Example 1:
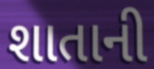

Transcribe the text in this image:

શાતાની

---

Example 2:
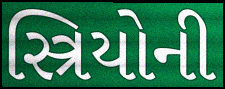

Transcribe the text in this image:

સ્ત્રિયોની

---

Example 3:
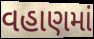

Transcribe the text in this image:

વહાણમાં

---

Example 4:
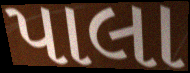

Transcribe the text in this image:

પાલા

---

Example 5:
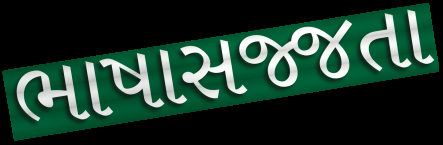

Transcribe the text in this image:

ભાષાસજ્જતા